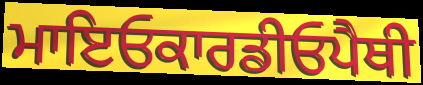
ਮਾਇਓਕਾਰਡੀਓਪੈਥੀ